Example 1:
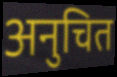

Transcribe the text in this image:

अनुचित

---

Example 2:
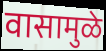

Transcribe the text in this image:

वासामुळे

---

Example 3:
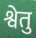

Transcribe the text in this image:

श्वेतु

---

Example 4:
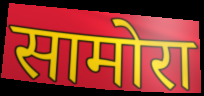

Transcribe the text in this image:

सामोरा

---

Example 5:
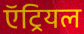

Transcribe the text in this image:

ऍट्रियल